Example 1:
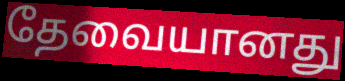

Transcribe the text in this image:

தேவையானது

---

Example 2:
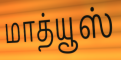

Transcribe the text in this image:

மாத்யூஸ்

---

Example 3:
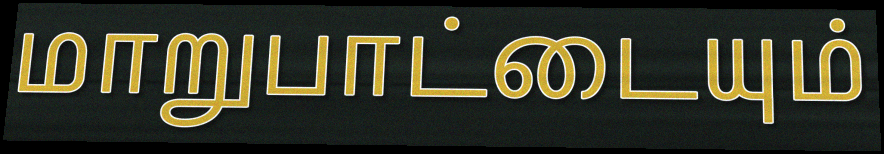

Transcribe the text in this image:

மாறுபாட்டையும்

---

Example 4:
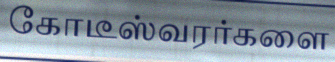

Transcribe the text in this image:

கோடீஸ்வரர்களை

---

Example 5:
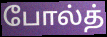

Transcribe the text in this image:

போல்த்